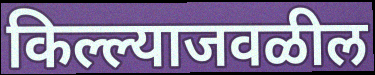
किल्ल्याजवळील